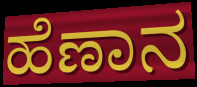
ಹೆಣಾನ